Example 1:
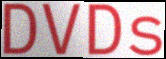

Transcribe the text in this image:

DVDs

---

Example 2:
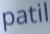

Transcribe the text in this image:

patil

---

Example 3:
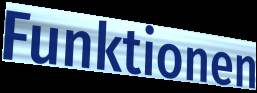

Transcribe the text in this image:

Funktionen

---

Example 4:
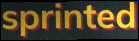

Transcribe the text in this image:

sprinted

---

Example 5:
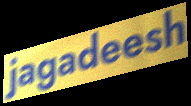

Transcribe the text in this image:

jagadeesh